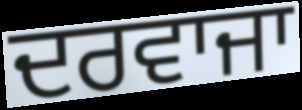
ਦਰਵਾਜਾ